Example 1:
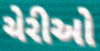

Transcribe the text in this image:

ચેરીઓ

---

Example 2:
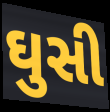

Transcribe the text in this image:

ઘુસી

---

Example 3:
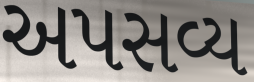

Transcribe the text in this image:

અપસવ્ય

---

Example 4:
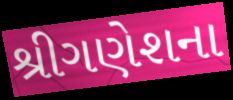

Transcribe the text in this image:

શ્રીગણેશના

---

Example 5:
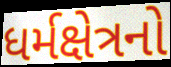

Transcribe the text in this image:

ધર્મક્ષેત્રનો